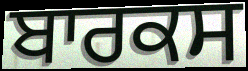
ਬਾਰਕਸ